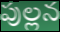
పుల్లన